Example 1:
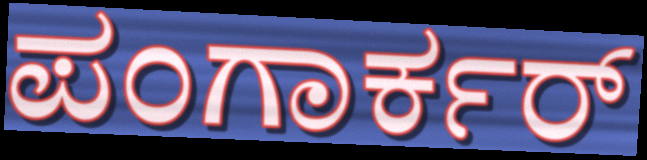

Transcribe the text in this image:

ಪಂಗಾರ್ಕರ್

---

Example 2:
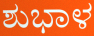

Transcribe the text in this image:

ಶುಭಾಳ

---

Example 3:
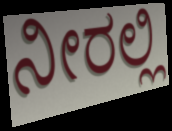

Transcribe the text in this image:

ನೀರಲ್ಲಿ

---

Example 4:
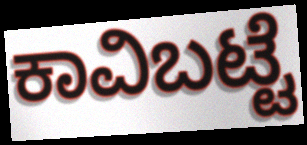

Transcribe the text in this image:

ಕಾವಿಬಟ್ಟೆ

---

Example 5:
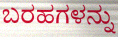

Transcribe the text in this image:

ಬರಹಗಳನ್ನು